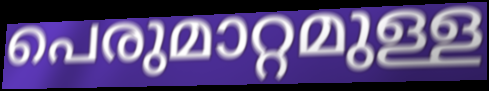
പെരുമാറ്റമുള്ള